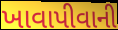
ખાવાપીવાની